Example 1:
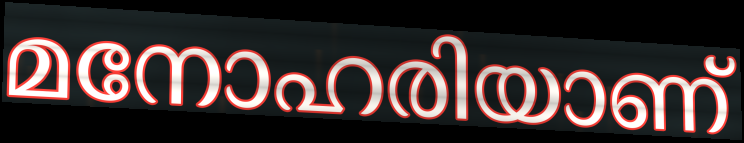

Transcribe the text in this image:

മനോഹരിയാണ്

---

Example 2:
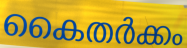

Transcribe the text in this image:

കൈതർക്കം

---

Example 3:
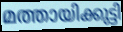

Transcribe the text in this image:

മത്തായിക്കുട്ടി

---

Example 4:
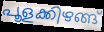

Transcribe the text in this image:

പൂളക്കിഴങ്ങ്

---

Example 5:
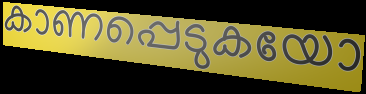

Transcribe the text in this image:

കാണപ്പെടുകയോ